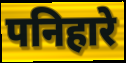
पनिहारे